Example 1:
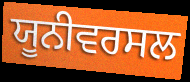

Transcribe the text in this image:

ਯੂਨੀਵਰਸਲ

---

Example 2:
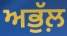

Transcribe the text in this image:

ਅਭੁੱਲ਼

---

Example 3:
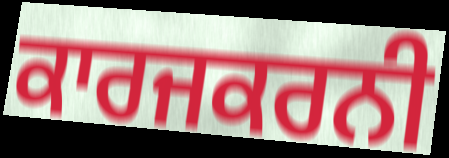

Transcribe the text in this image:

ਕਾਰਜਕਰਨੀ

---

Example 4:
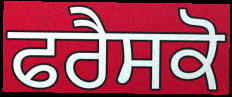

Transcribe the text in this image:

ਫਰੈਸਕੋ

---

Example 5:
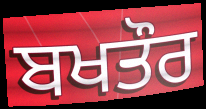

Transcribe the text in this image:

ਬਖਤੌਰ